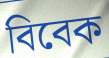
বিবেক